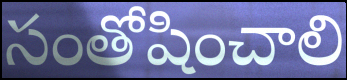
సంతోషించాలి